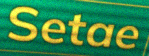
Setae